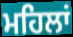
ਮਹਿਲਾਂ